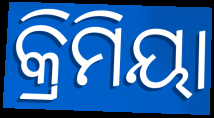
କ୍ରିମିୟା